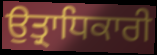
ਉਤ੍ਰਾਧਿਕਾਰੀ